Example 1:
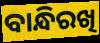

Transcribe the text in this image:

ବାନ୍ଧିରଖି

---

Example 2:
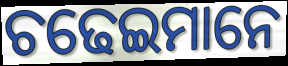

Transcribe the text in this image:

ଚଢେଇମାନେ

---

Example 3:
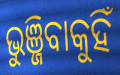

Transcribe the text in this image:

ଭୁଞ୍ଜିବାକୁହିଁ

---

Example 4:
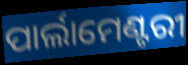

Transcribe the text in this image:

ପାର୍ଲାମେଣ୍ଟରୀ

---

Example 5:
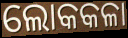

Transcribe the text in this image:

ଲୋକକଳା